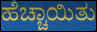
ಹೆಚ್ಚಾಯಿತು